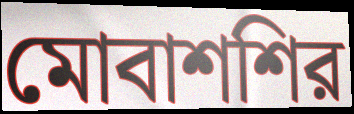
মোবাশশির